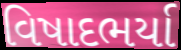
વિષાદભર્યા